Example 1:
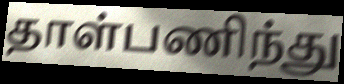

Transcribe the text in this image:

தாள்பணிந்து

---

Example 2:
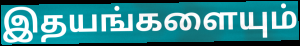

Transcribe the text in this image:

இதயங்களையும்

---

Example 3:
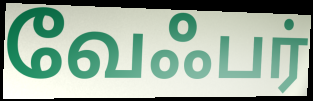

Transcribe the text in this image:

வேஃபர்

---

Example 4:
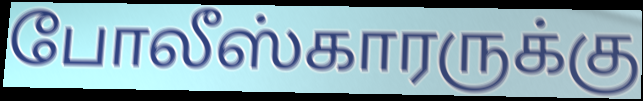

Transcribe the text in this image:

போலீஸ்காரருக்கு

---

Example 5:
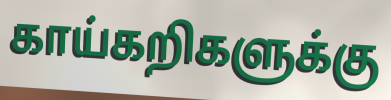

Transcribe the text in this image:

காய்கறிகளுக்கு